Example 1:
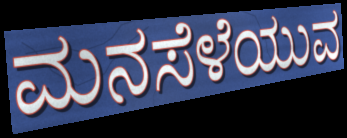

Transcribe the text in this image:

ಮನಸೆಳೆಯುವ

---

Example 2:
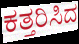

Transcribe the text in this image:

ಕತ್ತರಿಸಿದ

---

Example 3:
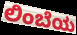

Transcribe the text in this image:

ಲಿಂಬೆಯ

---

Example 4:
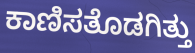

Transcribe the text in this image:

ಕಾಣಿಸತೊಡಗಿತ್ತು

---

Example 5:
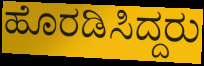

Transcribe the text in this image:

ಹೊರಡಿಸಿದ್ದರು